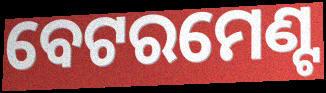
ବେଟରମେଣ୍ଟ